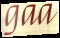
gaa